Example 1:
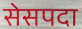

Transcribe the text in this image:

सेसपदा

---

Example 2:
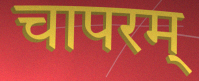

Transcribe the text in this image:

चापरम्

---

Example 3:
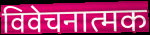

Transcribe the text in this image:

विवेचनात्‍मक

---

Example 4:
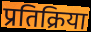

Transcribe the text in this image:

प्रतिक्रिया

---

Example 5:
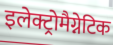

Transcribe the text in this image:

इलेक्ट्रोमैग्नेटिक